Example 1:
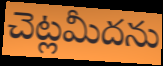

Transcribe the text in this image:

చెట్లమీదను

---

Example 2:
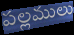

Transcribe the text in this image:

పల్లములు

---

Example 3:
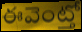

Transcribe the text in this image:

ఈవెంట్తో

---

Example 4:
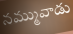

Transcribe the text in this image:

నమ్మువాడు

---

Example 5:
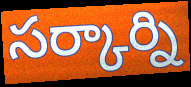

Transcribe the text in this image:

సర్కార్ని